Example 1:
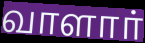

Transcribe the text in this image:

வாளார்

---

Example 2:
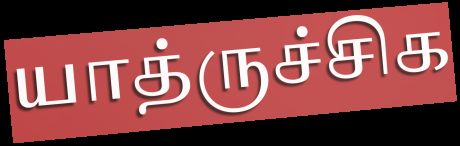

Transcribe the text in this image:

யாத்ருச்சிக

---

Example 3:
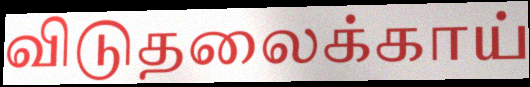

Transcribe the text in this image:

விடுதலைக்காய்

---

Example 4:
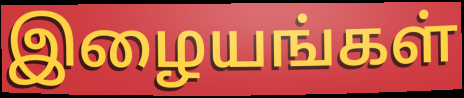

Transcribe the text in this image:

இழையங்கள்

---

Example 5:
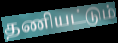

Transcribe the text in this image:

தணியட்டும்